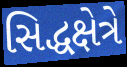
સિદ્ધક્ષેત્રે